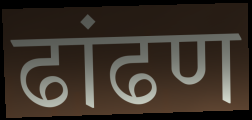
ढांढण